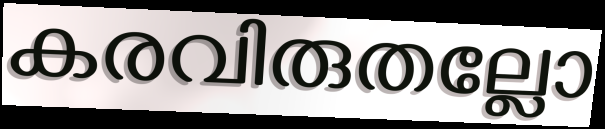
കരവിരുതല്ലോ